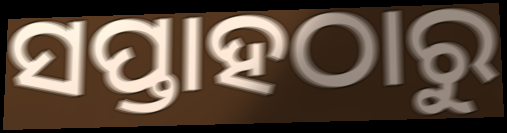
ସପ୍ତାହଠାରୁ